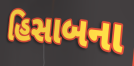
હિસાબના